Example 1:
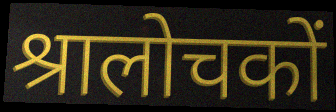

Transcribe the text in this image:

श्रालोचकों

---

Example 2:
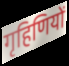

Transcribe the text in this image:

गृहिणियों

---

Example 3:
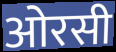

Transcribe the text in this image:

ओरसी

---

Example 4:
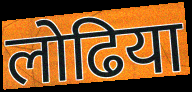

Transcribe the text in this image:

लोढिया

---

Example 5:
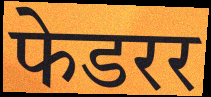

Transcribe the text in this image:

फेडरर